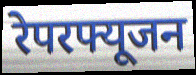
रेपरफ्यूजन